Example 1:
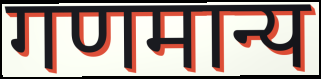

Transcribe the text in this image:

गणमान्य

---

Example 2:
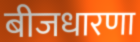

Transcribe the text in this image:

बीजधारणा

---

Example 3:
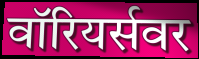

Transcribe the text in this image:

वॉरियर्सवर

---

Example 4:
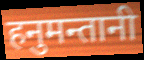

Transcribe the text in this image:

हनुमन्तानी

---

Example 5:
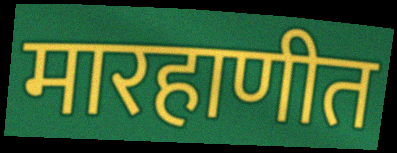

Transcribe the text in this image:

मारहाणीत